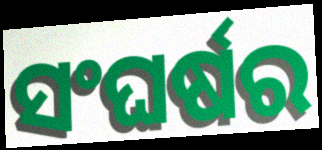
ସଂଘର୍ଷର